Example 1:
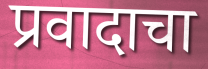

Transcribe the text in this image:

प्रवादाचा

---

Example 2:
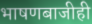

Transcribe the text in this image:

भाषणबाजीही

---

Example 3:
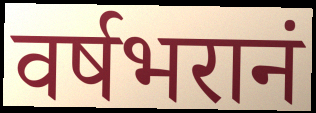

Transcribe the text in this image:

वर्षभरानं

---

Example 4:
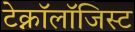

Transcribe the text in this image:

टेक्नॉलॉजिस्ट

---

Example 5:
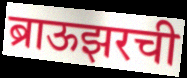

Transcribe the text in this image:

ब्राऊझरची